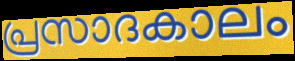
പ്രസാദകാലം